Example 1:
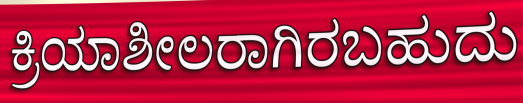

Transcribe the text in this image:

ಕ್ರಿಯಾಶೀಲರಾಗಿರಬಹುದು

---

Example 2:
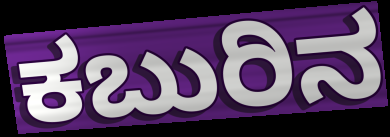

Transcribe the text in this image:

ಕಬುರಿನ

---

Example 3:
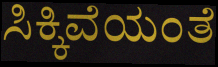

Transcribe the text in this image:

ಸಿಕ್ಕಿವೆಯಂತೆ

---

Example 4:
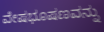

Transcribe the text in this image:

ವೇಷಭೂಷಣವನ್ನು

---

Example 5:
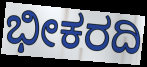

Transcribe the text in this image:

ಭೀಕರದಿ